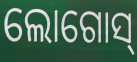
ଲୋଗୋସ୍